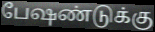
பேஷண்டுக்கு